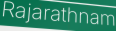
Rajarathnam